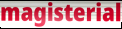
magisterial